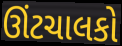
ઊંટચાલકો